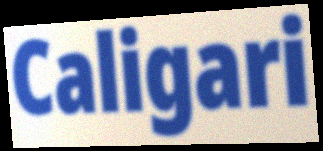
Caligari